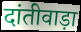
दांतीवाड़ा